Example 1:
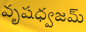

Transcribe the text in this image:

వృషధ్వజమ్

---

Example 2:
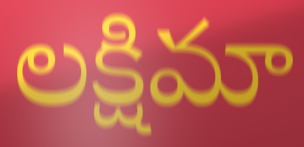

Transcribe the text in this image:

లక్షిమా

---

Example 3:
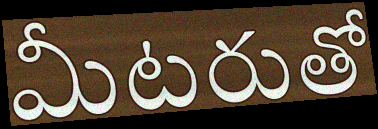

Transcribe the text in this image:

మీటరుతో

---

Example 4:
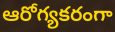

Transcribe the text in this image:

ఆరోగ్యకరంగా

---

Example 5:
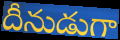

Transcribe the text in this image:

దీనుడుగా